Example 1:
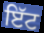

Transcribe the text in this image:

ਇੱਟ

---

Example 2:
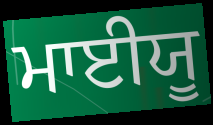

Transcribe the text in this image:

ਮਾਈਯੂ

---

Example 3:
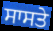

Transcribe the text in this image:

ਸਾਸਤੇ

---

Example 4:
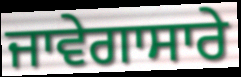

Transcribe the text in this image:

ਜਾਵੇਗਾਸਾਰੇ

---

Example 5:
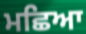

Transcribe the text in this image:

ਮਛਿਆ